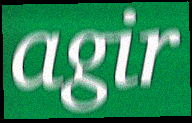
agir